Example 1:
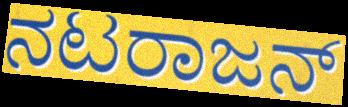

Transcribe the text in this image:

ನಟರಾಜನ್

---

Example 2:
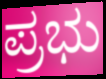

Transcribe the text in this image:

ಪ್ರಭು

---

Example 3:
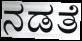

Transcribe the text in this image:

ನಡತೆ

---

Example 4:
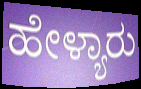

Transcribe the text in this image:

ಹೇಳ್ಯಾರು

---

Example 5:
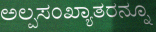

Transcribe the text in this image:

ಅಲ್ಪಸಂಖ್ಯಾತರನ್ನೂ